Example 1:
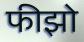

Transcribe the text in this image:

फीझो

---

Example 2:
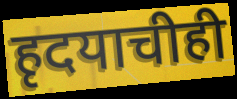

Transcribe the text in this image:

हृदयाचीही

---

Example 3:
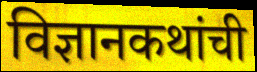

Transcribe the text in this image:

विज्ञानकथांची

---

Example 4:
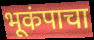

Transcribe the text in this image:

भूकंपाचा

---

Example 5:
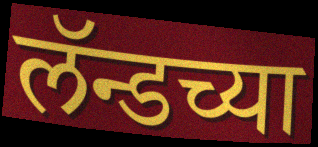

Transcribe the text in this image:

लॅन्डच्या